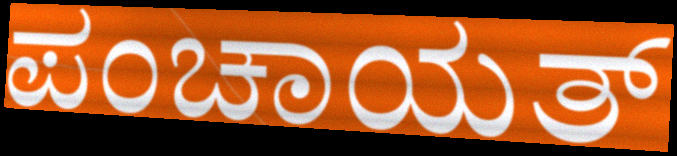
ಪಂಚಾಯತ್